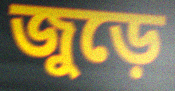
জুড়ে